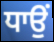
ਧਾਉਂ